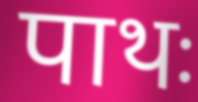
पाथः